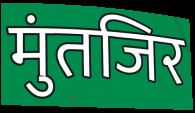
मुंतजिर